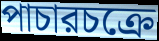
পাচারচক্রে